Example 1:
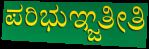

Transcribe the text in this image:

ಪರಿಭುಞ್ಜತೀತಿ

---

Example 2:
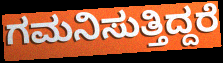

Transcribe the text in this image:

ಗಮನಿಸುತ್ತಿದ್ದರೆ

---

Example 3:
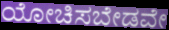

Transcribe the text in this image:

ಯೋಚಿಸಬೇಡವೇ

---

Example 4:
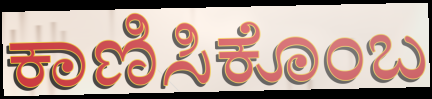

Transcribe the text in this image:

ಕಾಣಿಸಿಕೊಂಬ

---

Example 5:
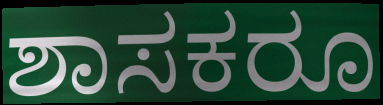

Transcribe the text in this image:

ಶಾಸಕರೂ